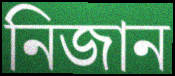
নিজান